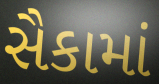
સૈકામાં